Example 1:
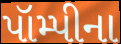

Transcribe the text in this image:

પૉમ્પીના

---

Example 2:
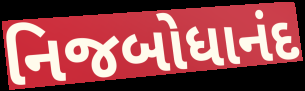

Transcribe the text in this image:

નિજબોધાનંદ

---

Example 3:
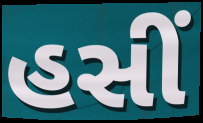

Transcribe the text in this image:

હસીં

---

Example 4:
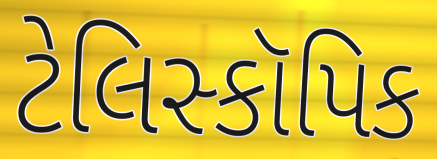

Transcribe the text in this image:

ટેલિસ્કૉપિક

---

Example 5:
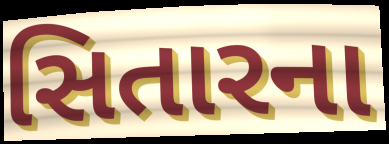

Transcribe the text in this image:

સિતારના